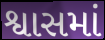
શ્વાસમાં